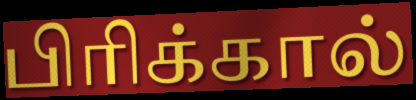
பிரிக்கால்